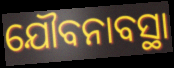
ଯୌବନାବସ୍ଥା